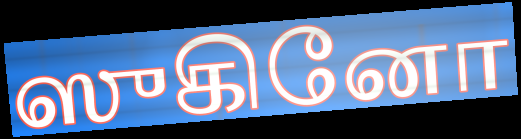
ஸுகினோ